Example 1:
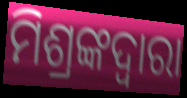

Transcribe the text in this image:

ମିଶ୍ରଙ୍କଦ୍ୱାରା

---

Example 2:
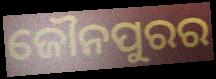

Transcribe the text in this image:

ଜୌନପୁରର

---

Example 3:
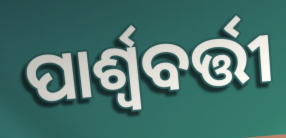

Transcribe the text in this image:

ପାର୍ଶ୍ୱବର୍ତ୍ତୀ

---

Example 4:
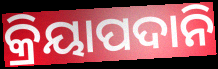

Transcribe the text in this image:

କ୍ରିୟାପଦାନି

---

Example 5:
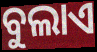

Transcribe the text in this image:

ବୁଲାଏ